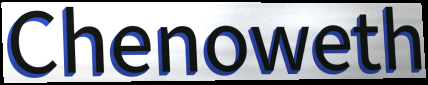
Chenoweth